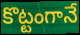
కొట్టంగానే